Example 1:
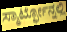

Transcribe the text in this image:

ಸ್ಮಾರ್ಟ್ಫೋನ್ನಲ್ಲಿ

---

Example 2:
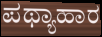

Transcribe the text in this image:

ಪಥ್ಯಾಹಾರ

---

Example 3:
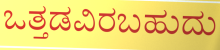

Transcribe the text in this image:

ಒತ್ತಡವಿರಬಹುದು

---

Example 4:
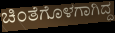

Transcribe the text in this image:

ಚಿಂತೆಗೊಳಗಾಗಿದ್ದ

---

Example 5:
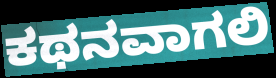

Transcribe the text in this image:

ಕಥನವಾಗಲಿ